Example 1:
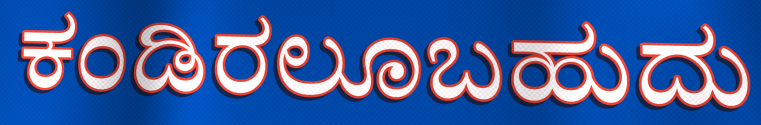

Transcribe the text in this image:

ಕಂಡಿರಲೂಬಹುದು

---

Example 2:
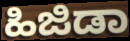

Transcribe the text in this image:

ಹಿಜಿಡಾ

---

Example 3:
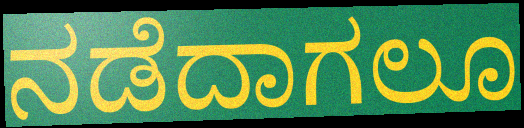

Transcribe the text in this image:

ನಡೆದಾಗಲೂ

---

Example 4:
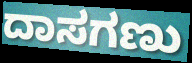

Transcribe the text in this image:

ದಾಸಗಣು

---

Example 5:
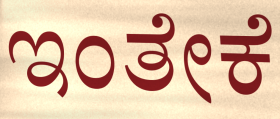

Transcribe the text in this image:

ಇಂತೇಕೆ